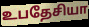
உபதேசியா